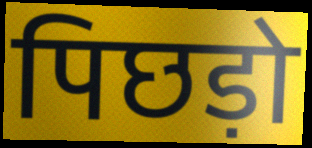
पिछड़ो